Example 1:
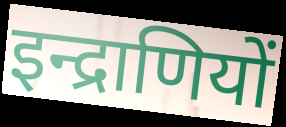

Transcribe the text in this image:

इन्द्राणियों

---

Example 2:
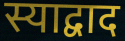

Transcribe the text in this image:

स्याद्वाद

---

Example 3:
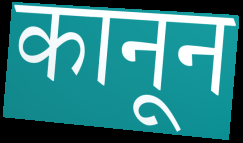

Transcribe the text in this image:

कानून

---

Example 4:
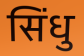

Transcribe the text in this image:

सिंधु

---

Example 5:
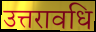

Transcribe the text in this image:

उत्तरावधि